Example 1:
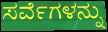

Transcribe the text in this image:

ಸರ್ವೆಗಳನ್ನು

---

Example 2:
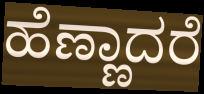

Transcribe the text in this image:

ಹೆಣ್ಣಾದರೆ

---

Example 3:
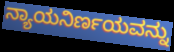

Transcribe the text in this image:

ನ್ಯಾಯನಿರ್ಣಯವನ್ನು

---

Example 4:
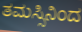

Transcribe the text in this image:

ತಮಸ್ಸಿನಿಂದ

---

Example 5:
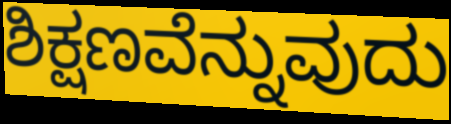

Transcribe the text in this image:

ಶಿಕ್ಷಣವೆನ್ನುವುದು